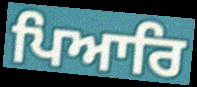
ਪਿਆਰਿ